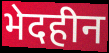
भेदहीन